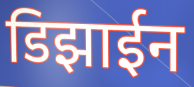
डिझाईन